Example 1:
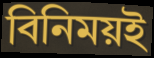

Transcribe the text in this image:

বিনিময়ই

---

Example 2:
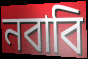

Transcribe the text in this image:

নবাবি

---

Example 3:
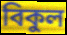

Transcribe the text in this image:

বিকুল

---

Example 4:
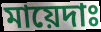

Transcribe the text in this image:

মায়েদাঃ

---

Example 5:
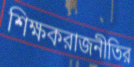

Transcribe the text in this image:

শিক্ষকরাজনীতির